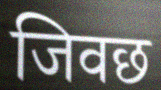
जिवछ